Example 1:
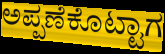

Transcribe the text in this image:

ಅಪ್ಪಣೆಕೊಟ್ಟಾಗ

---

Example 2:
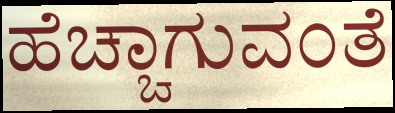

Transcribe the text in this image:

ಹೆಚ್ಚಾಗುವಂತೆ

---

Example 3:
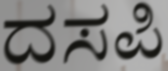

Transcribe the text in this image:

ದಸಪಿ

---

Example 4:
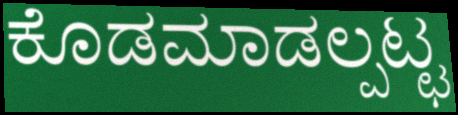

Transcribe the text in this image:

ಕೊಡಮಾಡಲ್ಪಟ್ಟ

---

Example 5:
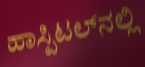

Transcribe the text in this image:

ಹಾಸ್ಪಿಟಲ್‌ನಲ್ಲಿ